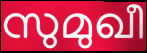
സുമുഖീ